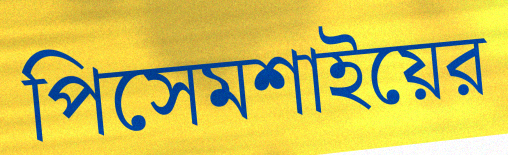
পিসেমশাইয়ের